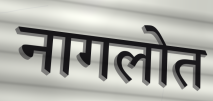
नागलोत